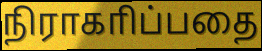
நிராகரிப்பதை